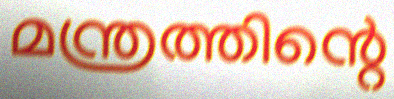
മന്ത്രത്തിന്റെ